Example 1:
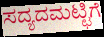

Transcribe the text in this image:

ಸದ್ಯದಮಟ್ಟಿಗೆ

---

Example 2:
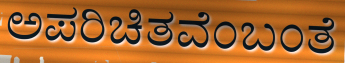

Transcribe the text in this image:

ಅಪರಿಚಿತವೆಂಬಂತೆ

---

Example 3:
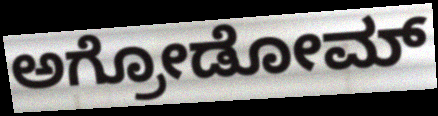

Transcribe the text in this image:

ಅಗ್ರೋಡೋಮ್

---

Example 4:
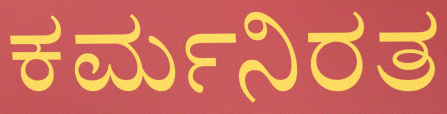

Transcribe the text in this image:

ಕರ್ಮನಿರತ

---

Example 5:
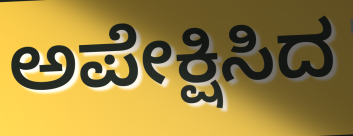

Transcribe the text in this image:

ಅಪೇಕ್ಷಿಸಿದ